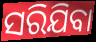
ସରିଯିବା